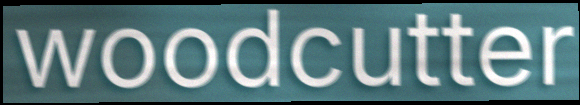
woodcutter